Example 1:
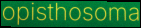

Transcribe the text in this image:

opisthosoma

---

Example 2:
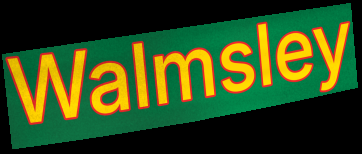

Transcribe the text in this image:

Walmsley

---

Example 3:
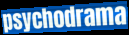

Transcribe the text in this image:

psychodrama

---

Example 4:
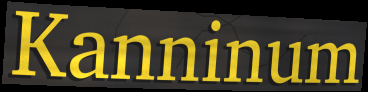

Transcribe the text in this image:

Kanninum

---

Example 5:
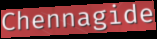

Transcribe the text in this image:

Chennagide